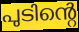
പുടിന്റെ